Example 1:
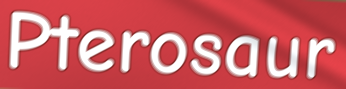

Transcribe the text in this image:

Pterosaur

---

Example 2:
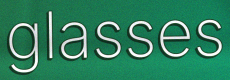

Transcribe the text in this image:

glasses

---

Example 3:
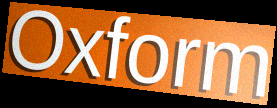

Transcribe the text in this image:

Oxform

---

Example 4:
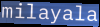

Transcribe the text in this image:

milayala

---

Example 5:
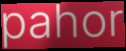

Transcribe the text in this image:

pahor